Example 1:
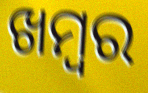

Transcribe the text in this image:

ଖମ୍ବର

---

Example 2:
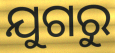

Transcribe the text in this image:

ଯୁଗରୁ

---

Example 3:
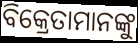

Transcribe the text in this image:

ବିକ୍ରେତାମାନଙ୍କୁ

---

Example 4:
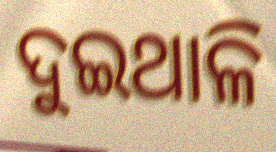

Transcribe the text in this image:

ଦୁଇଥାଳି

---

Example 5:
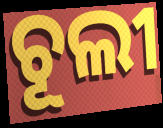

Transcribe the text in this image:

ଚୂଲୀ